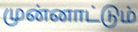
முன்னாட்டும்